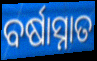
ବର୍ଷାସ୍ନାତ